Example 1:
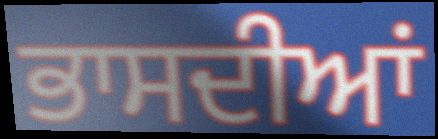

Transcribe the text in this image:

ਭਾਸਦੀਆਂ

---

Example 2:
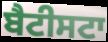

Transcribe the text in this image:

ਬੈਟੀਸਟਾ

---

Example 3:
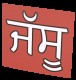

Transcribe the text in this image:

ਜੱਸੂ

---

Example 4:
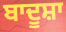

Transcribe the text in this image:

ਬਾਦੂਸ਼ਾ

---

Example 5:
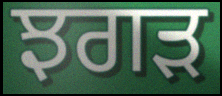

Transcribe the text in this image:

ਝਗੜ